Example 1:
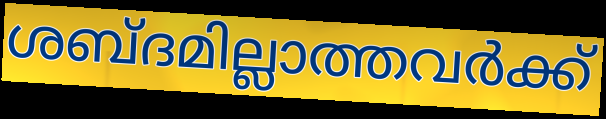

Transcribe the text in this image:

ശബ്ദമില്ലാത്തവർക്ക്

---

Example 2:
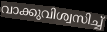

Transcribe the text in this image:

വാക്കുവിശ്വസിച്ച്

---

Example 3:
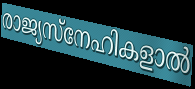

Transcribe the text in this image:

രാജ്യസ്നേഹികളാൽ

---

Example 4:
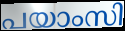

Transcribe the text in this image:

പയാംസി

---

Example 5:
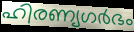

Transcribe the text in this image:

ഹിരണ്യഗർഭം